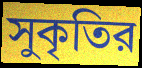
সুকৃতির